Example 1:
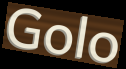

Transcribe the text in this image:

Golo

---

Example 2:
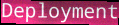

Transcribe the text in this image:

Deployment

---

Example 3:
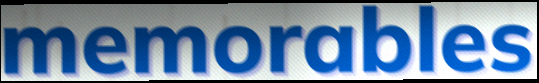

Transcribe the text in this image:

memorables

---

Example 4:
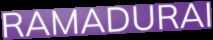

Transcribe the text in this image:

RAMADURAI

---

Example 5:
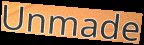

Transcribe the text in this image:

Unmade